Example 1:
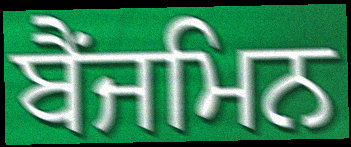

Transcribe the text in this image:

ਬੈਂਜਮਿਨ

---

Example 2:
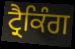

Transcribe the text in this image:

ਟ੍ਰੈਕਿੰਗ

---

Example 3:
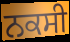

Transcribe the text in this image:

ਨਕਸੀ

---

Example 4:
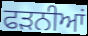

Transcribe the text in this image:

ਫੜਨੀਆਂ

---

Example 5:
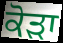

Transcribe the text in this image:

ਕੋੜਾ